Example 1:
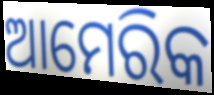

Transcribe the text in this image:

ଆମେରିକ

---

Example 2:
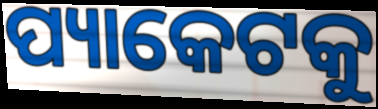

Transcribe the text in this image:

ପ୍ୟାକେଟକୁ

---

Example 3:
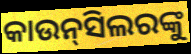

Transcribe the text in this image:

କାଉନ୍‌ସିଲରଙ୍କୁ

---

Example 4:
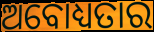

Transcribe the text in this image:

ଅବୋଧ୍ୟତାର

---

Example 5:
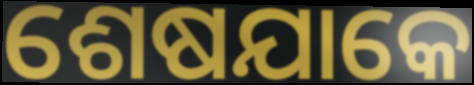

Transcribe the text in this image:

ଶେଷଯାକେ